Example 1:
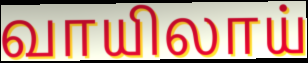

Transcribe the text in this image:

வாயிலாய்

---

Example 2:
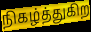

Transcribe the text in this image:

நிகழ்த்துகிற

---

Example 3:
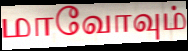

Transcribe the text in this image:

மாவோவும்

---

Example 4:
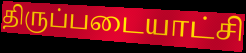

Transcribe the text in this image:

திருப்படையாட்சி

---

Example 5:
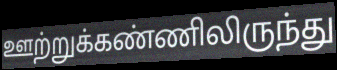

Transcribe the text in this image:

ஊற்றுக்கண்ணிலிருந்து